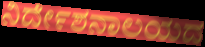
ನಿರ್ದೇಶನಾಲಯದ